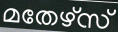
മതേഴ്സ്